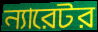
ন্যারেটর